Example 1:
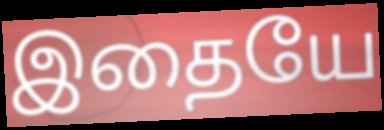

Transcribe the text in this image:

இதையே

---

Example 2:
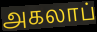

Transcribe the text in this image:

அகலாப்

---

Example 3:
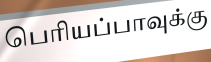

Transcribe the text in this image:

பெரியப்பாவுக்கு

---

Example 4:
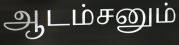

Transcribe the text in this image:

ஆடம்சனும்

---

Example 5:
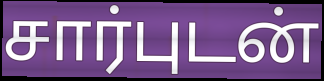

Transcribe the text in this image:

சார்புடன்